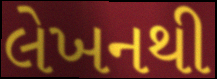
લેખનથી